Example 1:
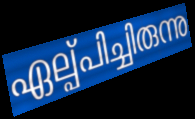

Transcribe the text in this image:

ഏല്പ്പിച്ചിരുന്നു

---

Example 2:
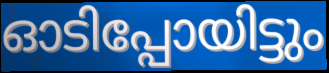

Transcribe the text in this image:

ഓടിപ്പോയിട്ടും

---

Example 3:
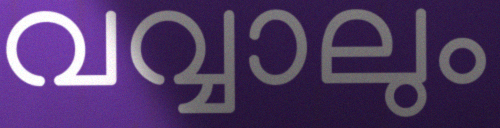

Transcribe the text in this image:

വവ്വാലും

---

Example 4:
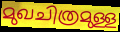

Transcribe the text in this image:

മുഖചിത്രമുള്ള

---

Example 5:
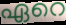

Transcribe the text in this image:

ഏറെ